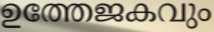
ഉത്തേജകവും